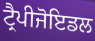
ਟ੍ਰੈਪੀਜੋਇਡਲ